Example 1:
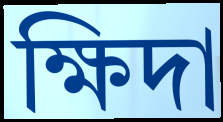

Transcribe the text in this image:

ক্ষিদা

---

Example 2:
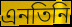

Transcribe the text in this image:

এনতিনি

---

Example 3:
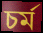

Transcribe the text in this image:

চর্ম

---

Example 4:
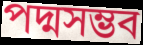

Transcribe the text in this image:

পদ্মসম্ভব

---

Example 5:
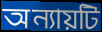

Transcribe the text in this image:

অন্যায়টি